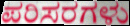
ಪರಿಸರಗಳು